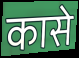
कासे